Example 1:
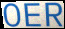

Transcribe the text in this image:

OER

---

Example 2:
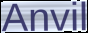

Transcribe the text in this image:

Anvil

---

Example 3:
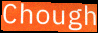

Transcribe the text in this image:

Chough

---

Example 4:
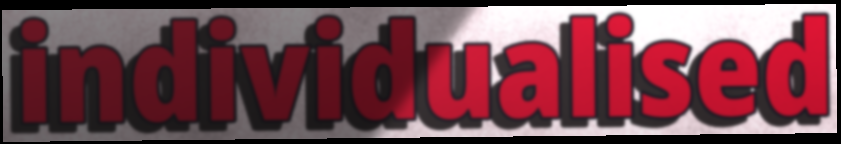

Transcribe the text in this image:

individualised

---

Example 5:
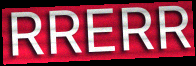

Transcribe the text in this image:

RRERR